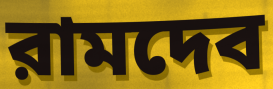
রামদেব